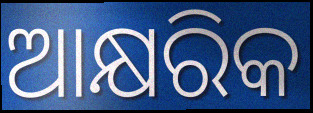
ଆକ୍ଷରିକ